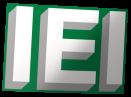
IEI